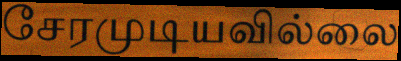
சேரமுடியவில்லை